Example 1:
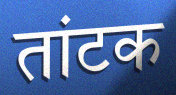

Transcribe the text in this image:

तांटक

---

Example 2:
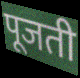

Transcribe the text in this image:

पूजती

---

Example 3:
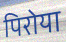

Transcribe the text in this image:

पिरोया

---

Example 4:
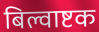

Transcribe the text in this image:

बिल्वाष्टक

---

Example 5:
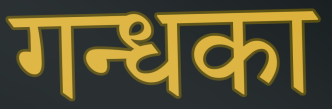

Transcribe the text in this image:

गन्धका